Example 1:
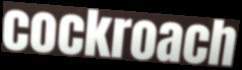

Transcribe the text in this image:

cockroach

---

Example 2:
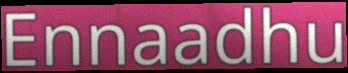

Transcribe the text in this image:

Ennaadhu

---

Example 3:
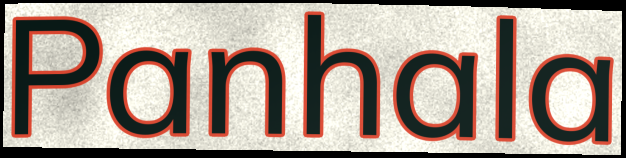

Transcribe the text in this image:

Panhala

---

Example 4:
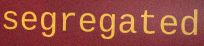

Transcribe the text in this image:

segregated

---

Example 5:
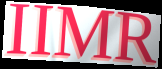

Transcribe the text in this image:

IIMR